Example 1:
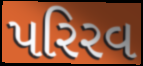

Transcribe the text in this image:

પરિરવ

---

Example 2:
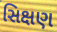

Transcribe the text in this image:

સિક્ષણ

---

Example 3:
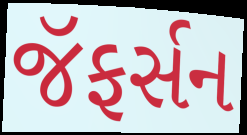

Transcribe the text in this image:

જૅફર્સન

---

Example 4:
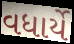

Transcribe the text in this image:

વધાર્યે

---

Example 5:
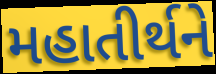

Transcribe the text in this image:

મહાતીર્થને